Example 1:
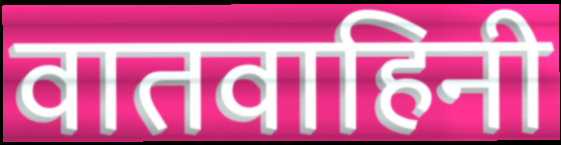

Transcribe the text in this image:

वातवाहिनी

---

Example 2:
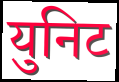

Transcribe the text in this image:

युनिट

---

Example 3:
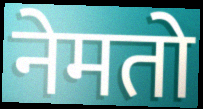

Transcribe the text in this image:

नेमतो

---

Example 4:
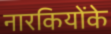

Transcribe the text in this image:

नारकियोंके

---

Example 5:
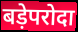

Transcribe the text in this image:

बड़ेपरोदा